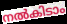
നൽകിടാം